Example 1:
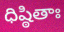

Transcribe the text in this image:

ధిష్ఠితాః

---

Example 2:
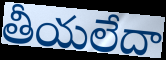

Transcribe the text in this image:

తీయలేదా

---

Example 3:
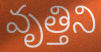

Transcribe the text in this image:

వృత్తిని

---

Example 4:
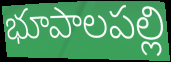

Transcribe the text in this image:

భూపాలపల్లి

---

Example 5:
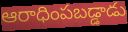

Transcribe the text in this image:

ఆరాధింపబడ్డాడు